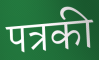
पत्रकी